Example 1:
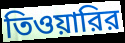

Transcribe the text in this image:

তিওয়ারির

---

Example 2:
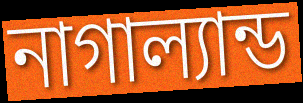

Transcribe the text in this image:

নাগাল্যান্ড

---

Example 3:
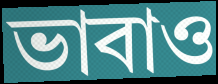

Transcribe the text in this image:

ভাবাও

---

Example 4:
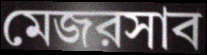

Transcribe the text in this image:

মেজরসাব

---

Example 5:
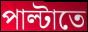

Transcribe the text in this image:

পাল্টাতে